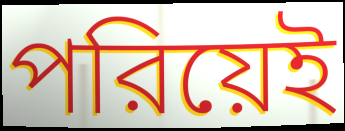
পরিয়েই